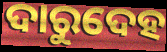
ଦାରୁଦେହ